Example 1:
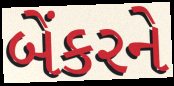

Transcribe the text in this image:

બેંકરને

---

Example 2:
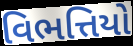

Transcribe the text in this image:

વિભત્તિયો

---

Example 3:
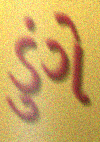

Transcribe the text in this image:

ડુંગે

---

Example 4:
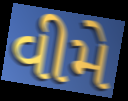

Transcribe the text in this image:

વીમે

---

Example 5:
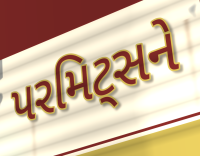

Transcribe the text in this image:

પરમિટ્સને